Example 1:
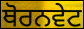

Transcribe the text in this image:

ਥੋਰਨਵੇਟ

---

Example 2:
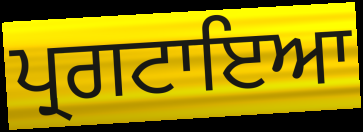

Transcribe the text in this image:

ਪ੍ਰਗਟਾਇਆ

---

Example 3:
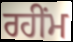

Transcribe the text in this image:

ਰਹੀਂਮ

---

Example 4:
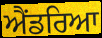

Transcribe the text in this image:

ਐਂਡਰਿਆ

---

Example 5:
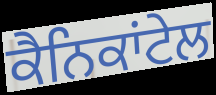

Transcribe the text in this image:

ਕੈਨਿਕਾਂਟੇਲ